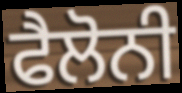
ਫੈਲੋਨੀ